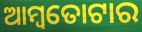
ଆମ୍ବତୋଟାର